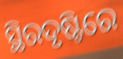
ସ୍ଥିରଦୃଷ୍ଟିରେ